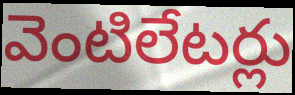
వెంటిలేటర్లు